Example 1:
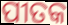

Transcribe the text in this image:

ପୀତକ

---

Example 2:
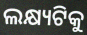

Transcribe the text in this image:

ଲକ୍ଷ୍ୟଟିକୁ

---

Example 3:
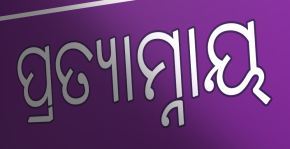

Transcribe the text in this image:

ପ୍ରତ୍ୟାମ୍ନାୟ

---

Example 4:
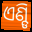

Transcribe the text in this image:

ଏଣ୍ଡି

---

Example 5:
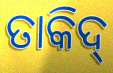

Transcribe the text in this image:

ତାକିଦ୍